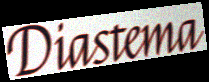
Diastema